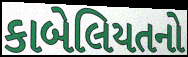
કાબેલિયતનો